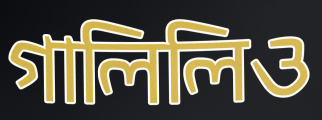
গালিলিও